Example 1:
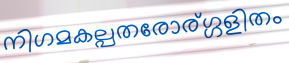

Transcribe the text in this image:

നിഗമകല്പതരോര്ഗ്ഗളിതം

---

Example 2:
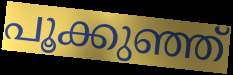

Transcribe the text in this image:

പൂക്കുഞ്ഞ്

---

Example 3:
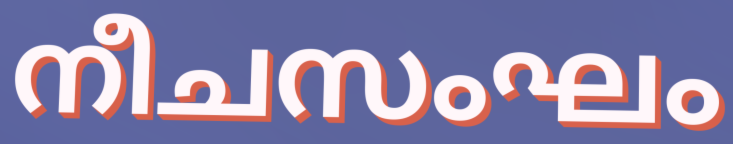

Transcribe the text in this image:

നീചസംഘം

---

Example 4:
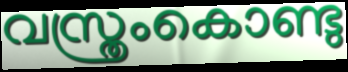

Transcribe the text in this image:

വസ്ത്രംകൊണ്ടു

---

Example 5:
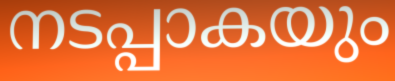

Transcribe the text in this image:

നടപ്പാകയും